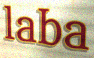
laba